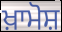
ਖ਼ਾਮੋਸ਼